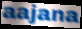
aajana